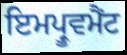
ਇਮਪ੍ਰੂਵਮੈਂਟ